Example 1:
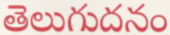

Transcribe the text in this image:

తెలుగుదనం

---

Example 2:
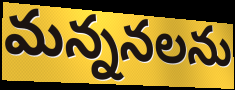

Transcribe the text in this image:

మన్ననలను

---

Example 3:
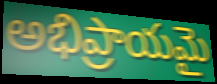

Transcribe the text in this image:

అభిప్రాయమై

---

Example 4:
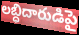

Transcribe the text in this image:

లబ్ధిదారుడిపై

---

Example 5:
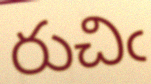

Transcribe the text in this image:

రుచిఁ